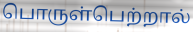
பொருள்பெற்றால்